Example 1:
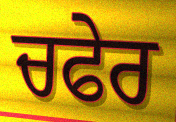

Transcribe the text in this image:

ਚਫੇਰ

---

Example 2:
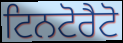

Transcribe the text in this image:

ਟਿਨਟੋਰੈਟੋ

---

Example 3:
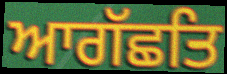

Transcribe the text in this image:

ਆਗੱਛਤਿ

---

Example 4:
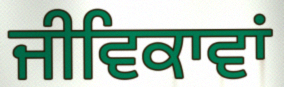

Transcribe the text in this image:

ਜੀਵਿਕਾਵਾਂ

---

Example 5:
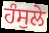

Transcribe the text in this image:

ਹੰਸੁਲੇ